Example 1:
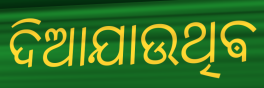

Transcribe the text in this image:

ଦିଆଯାଉଥିଵ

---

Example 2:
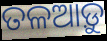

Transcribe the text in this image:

ତଳଆଡ଼ୁ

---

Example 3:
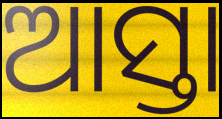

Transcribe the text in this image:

ଆସ୍ତା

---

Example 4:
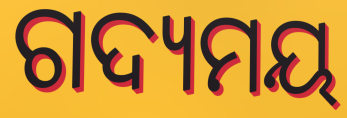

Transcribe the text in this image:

ଗଦ୍ୟମୟ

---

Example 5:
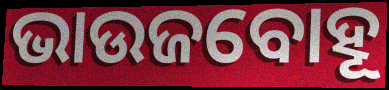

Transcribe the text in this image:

ଭାଉଜବୋହୂ